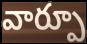
వార్పూ